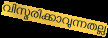
വിസ്മരിക്കാവുന്നതല്ല